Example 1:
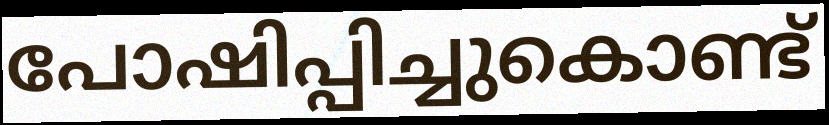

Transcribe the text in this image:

പോഷിപ്പിച്ചുകൊണ്ട്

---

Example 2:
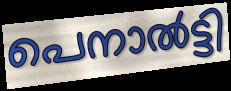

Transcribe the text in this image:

പെനാൽട്ടി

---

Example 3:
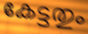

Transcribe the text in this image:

കേട്ടതും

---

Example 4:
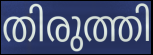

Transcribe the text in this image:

തിരുത്തി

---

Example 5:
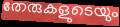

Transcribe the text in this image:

തേരുകളുടെയും